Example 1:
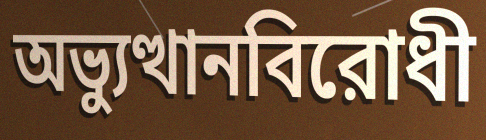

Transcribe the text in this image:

অভ্যুত্থানবিরোধী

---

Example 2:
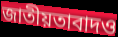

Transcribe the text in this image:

জাতীয়তাবাদও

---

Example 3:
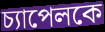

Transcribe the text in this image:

চ্যাপেলকে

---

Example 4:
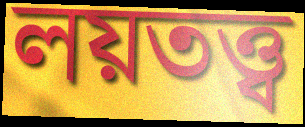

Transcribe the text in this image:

লয়তত্ত্ব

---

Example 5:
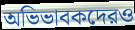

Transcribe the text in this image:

অভিভাবকদেরও